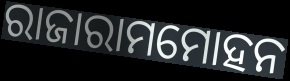
ରାଜାରାମମୋହନ